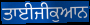
ਤਾਈਜੀਕੁਆਨ